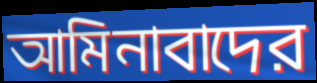
আমিনাবাদের